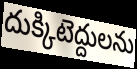
దుక్కిటెద్దులను